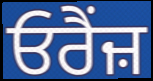
ਓਰੈਂਜ਼